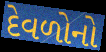
દેવળોનો